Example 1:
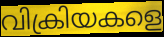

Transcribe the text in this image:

വിക്രിയകളെ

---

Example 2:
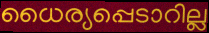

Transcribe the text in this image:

ധൈര്യപ്പെടാറില്ല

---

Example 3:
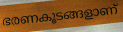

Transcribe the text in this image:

ഭരണകൂടങ്ങളാണ്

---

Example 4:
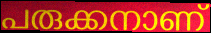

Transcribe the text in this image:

പരുക്കനാണ്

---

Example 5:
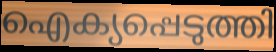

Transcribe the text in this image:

ഐക്യപ്പെടുത്തി